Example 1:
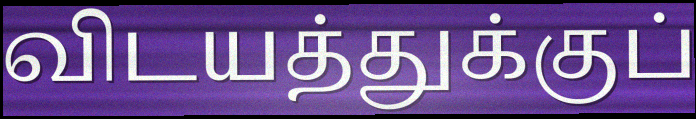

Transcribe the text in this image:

விடயத்துக்குப்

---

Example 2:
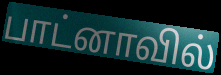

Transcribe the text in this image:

பாட்னாவில்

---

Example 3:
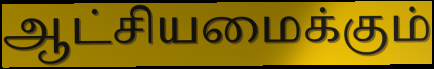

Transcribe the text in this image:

ஆட்சியமைக்கும்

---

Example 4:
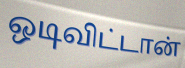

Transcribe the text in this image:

ஒடிவிட்டான்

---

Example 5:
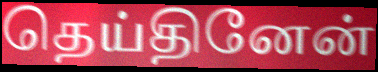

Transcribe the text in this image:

தெய்தினேன்